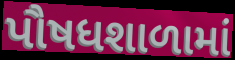
પૌષધશાળામાં